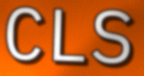
CLS